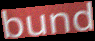
bund